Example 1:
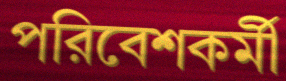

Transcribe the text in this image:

পরিবেশকর্মী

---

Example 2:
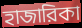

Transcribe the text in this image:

হাজারিকা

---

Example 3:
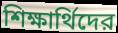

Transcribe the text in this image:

শিক্ষার্থিদের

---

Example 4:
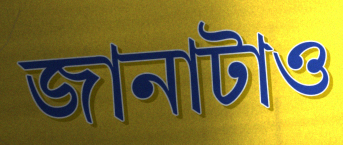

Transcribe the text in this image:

জানাটাও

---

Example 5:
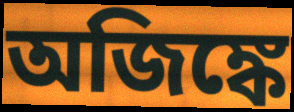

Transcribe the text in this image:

অজিঙ্কে